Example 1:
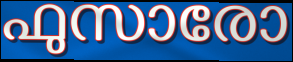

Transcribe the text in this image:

ഫുസാരോ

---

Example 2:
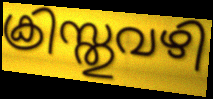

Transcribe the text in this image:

ക്രിസ്തുവഴി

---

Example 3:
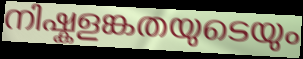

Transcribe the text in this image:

നിഷ്കളങ്കതയുടെയും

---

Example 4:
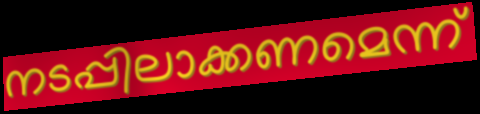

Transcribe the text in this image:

നടപ്പിലാക്കണമെന്ന്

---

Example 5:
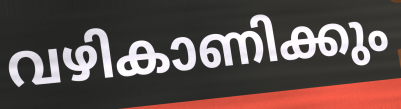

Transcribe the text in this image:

വഴികാണിക്കും